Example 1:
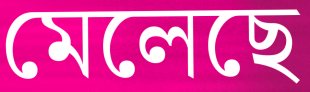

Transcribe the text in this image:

মেলেছে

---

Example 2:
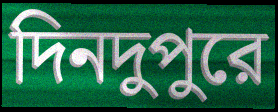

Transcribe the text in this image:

দিনদুপুরে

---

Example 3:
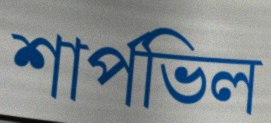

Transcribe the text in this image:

শার্পভিল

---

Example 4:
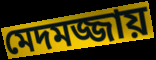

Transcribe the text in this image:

মেদমজ্জায়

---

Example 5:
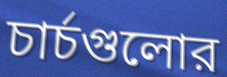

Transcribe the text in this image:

চার্চগুলোর